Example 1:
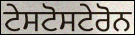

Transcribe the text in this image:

ਟੇਸਟੋਸਟੇਰੋਨ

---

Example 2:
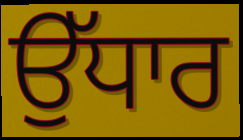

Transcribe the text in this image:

ਉੱਧਾਰ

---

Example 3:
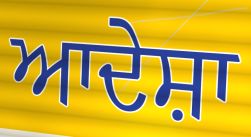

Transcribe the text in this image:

ਆਦੇਸ਼ਾ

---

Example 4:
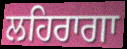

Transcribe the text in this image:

ਲਹਿਰਾਗਾ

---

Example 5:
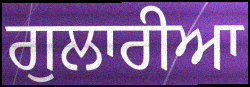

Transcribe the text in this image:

ਗੁਲਾਰੀਆ